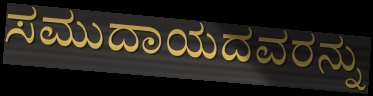
ಸಮುದಾಯದವರನ್ನು